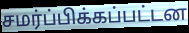
சமர்ப்பிக்கப்பட்டன